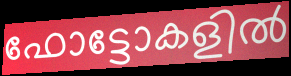
ഫോട്ടോകളിൽ